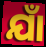
ଯାଁ